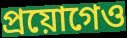
প্ৰয়োগেও